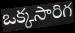
ఒక్కసారిగ